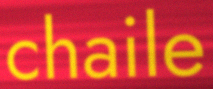
chaile